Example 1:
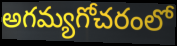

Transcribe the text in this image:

అగమ్యగోచరంలో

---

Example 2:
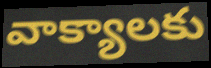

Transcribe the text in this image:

వాక్యాలకు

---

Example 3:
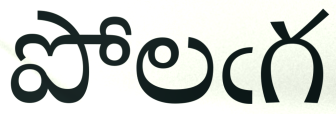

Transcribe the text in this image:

పోలఁగ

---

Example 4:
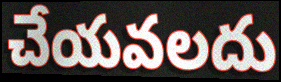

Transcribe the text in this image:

చేయవలదు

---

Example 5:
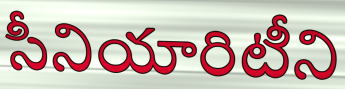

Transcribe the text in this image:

సీనియారిటీని